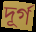
দূৰ্গ